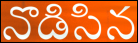
నొడిసిన